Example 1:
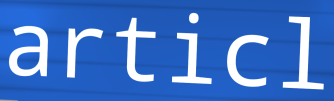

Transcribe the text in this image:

articl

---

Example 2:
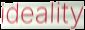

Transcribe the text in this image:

ideality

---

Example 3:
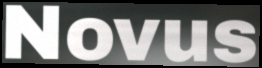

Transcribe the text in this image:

Novus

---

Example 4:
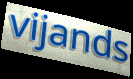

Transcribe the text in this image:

vijands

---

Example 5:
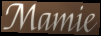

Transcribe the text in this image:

Mamie